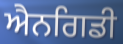
ਐਨਗਿਡੀ